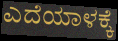
ಎದೆಯಾಳಕ್ಕೆ